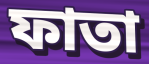
ফাতা